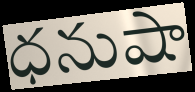
ధనుషా